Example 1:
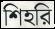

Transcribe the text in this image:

শিহরি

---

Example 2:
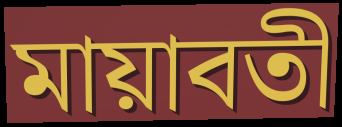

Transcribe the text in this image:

মায়াবতী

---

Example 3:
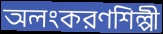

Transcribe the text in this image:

অলংকরণশিল্পী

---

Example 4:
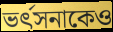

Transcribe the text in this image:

ভর্ৎসনাকেও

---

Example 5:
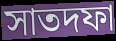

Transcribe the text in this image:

সাতদফা